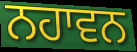
ਨਹਾਵਨ